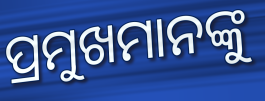
ପ୍ରମୁଖମାନଙ୍କୁ